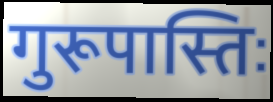
गुरूपास्तिः